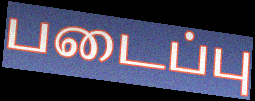
படைப்பு